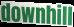
downhill